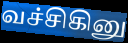
வச்சிகினு